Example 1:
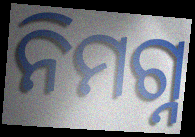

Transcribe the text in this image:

ନିମଗ୍ନ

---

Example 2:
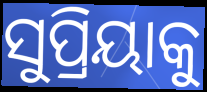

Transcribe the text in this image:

ସୁପ୍ରିୟାକୁ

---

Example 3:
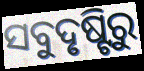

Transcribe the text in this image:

ସବୁଦୃଷ୍ଟିରୁ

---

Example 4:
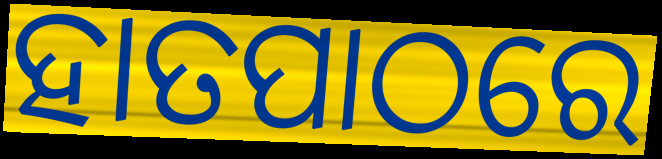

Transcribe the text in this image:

ହାତପାଠରେ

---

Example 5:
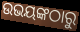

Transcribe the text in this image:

ଉଭୟଙ୍କଠାରୁ